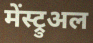
मेंस्ट्रुअल